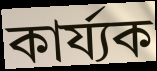
কাৰ্য্যক